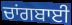
ਚਾਂਗਬਾਈ